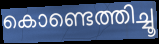
കൊണ്ടെത്തിച്ചൂ